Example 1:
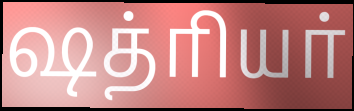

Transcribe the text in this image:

ஷத்ரியர்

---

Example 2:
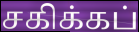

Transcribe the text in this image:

சகிக்கப்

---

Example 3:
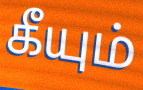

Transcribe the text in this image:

கீயும்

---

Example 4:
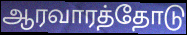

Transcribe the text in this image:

ஆரவாரத்தோடு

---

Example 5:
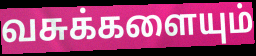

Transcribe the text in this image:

வசுக்களையும்